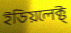
ইডিয়লেক্ট্